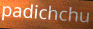
padichchu